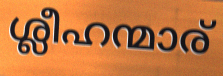
ശ്ലീഹന്മാര്